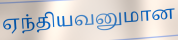
ஏந்தியவனுமான